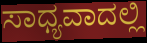
ಸಾಧ್ಯವಾದಲ್ಲಿ